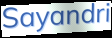
Sayandri